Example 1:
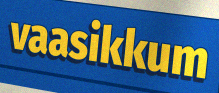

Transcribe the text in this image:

vaasikkum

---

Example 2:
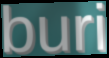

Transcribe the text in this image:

buri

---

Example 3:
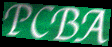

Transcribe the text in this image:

PCBA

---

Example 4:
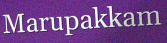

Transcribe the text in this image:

Marupakkam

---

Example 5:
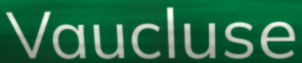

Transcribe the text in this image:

Vaucluse